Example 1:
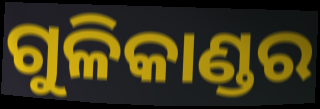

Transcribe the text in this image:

ଗୁଳିକାଣ୍ଡର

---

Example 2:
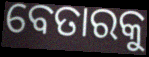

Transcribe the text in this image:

ବେତାରକୁ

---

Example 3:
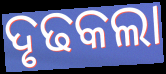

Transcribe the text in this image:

ଦୃଢକଲା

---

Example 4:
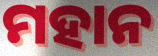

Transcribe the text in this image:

ମହାନ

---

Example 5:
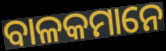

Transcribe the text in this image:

ବାଳକମାନେ